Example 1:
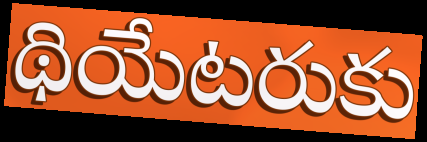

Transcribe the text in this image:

థియేటరుకు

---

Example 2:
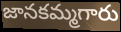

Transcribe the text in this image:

జానకమ్మగారు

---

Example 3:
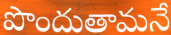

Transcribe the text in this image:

పొందుతామనే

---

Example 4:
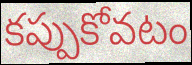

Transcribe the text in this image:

కప్పుకోవటం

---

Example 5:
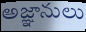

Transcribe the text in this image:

అజ్ఞానులు